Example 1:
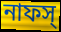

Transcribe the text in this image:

নাফস্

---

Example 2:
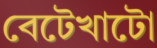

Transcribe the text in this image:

বেটেখাটো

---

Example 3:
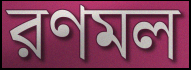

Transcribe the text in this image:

রণমল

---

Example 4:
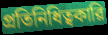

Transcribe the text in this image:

প্রতিনিধিত্বকারি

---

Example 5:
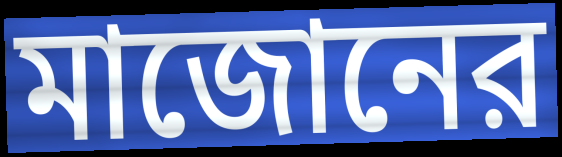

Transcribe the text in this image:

মাজোনের